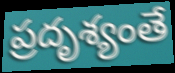
ప్రదృశ్యంతే